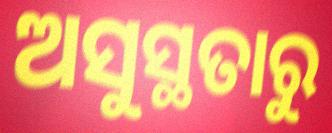
ଅସୁସ୍ଥତାରୁ